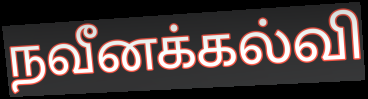
நவீனக்கல்வி